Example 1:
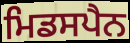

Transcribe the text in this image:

ਮਿਡਸਪੈਨ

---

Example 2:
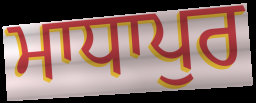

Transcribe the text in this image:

ਮਾਧਾਪੁਰ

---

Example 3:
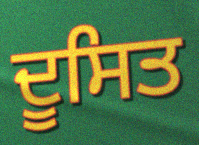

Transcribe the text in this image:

ਦੂਸਿਤ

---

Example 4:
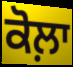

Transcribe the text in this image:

ਕੋਲ਼ਾ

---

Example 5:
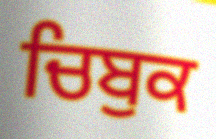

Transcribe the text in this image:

ਚਿਬੁਕ